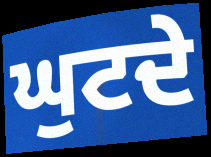
ਘੁਟਦੇ